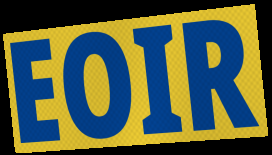
EOIR